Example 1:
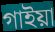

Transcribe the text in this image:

গাইয়া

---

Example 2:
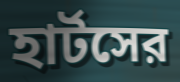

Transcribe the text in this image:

হার্টসের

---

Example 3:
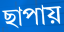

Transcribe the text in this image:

ছাপায়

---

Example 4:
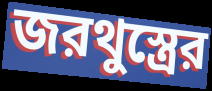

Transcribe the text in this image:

জরথুস্ত্রের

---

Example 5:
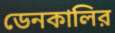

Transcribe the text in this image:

ডেনকালির